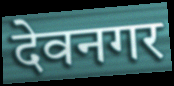
देवनगर